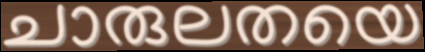
ചാരുലതയെ